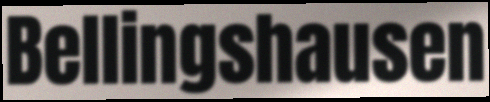
Bellingshausen